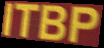
ITBP